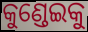
କୁଣ୍ଡେଇକୁ